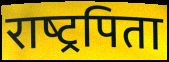
राष्ट्रपिता